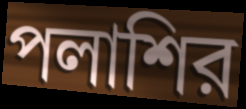
পলাশির